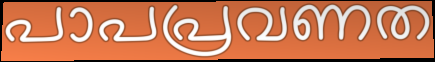
പാപപ്രവണത